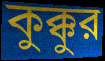
কুক্কুর